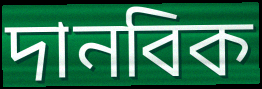
দানবিক